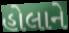
હોલાને